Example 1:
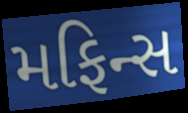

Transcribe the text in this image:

મફિન્સ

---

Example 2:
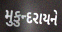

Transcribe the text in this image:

મુકુન્દરાયને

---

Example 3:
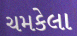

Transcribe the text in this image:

ચમકેલા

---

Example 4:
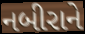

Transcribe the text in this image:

નબીરાને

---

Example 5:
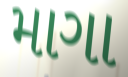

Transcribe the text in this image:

માગા